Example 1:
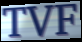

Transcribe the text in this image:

TVF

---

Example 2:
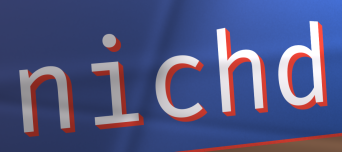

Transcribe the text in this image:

nichd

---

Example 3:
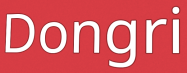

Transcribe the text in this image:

Dongri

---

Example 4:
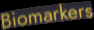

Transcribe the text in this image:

Biomarkers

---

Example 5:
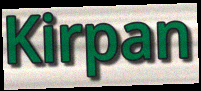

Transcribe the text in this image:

Kirpan